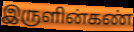
இருளின்கண்